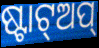
ଷ୍ଟାଟ୍ଅପ୍